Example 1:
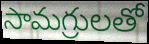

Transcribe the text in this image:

సామగ్రులతో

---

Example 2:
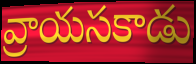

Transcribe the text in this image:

వ్రాయసకాడు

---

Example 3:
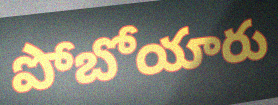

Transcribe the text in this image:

పోబోయారు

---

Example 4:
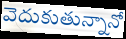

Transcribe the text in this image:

వెదుకుతున్నానో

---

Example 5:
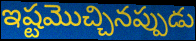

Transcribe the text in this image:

ఇష్టమొచ్చినప్పుడు